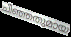
ചീഞ്ഞതുമായ